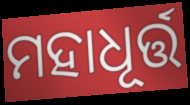
ମହାଧୂର୍ତ୍ତ